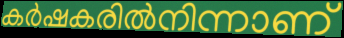
കർഷകരിൽനിന്നാണ്